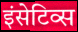
इंसेटिव्स